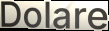
Dolare